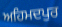
ਅਹਿਮਦਪੁਰ